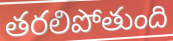
తరలిపోతుంది